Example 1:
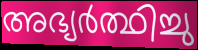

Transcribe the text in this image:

അഭ്യർത്ഥിച്ചു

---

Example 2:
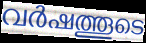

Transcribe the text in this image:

വർഷത്തൂടെ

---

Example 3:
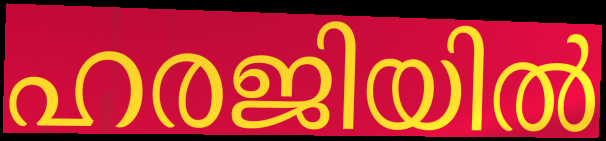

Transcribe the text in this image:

ഹരജിയിൽ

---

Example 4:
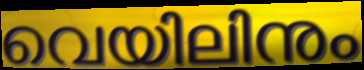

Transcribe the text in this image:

വെയിലിനും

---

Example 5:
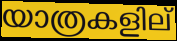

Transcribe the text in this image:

യാത്രകളില്